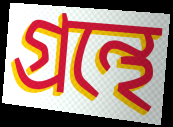
গ্ৰন্থে